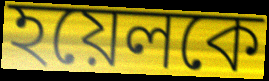
হয়েলকে